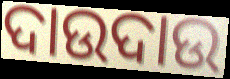
ଦାଉଦାଉ